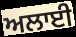
ਅਲਾਈ